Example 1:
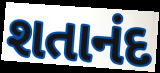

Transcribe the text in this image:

શતાનંદ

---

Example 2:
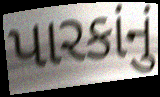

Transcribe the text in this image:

પારકાંનું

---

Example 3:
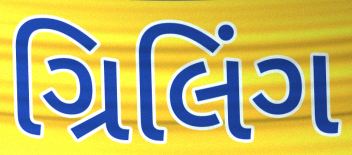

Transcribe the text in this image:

ગ્રિલિંગ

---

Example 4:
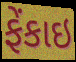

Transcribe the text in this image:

ફેંકાઇ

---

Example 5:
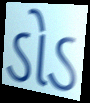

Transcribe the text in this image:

ડોડ